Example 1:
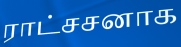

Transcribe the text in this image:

ராட்சசனாக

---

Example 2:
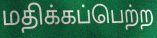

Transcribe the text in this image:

மதிக்கப்பெற்ற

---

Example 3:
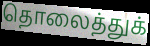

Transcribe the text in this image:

தொலைத்துக்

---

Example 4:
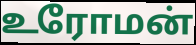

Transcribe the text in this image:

உரோமன்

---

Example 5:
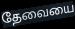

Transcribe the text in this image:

தேவையை